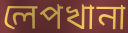
লেপখানা